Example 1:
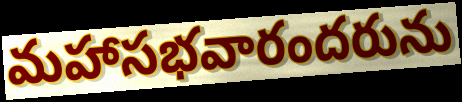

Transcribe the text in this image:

మహాసభవారందరును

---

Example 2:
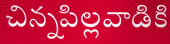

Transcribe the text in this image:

చిన్నపిల్లవాడికి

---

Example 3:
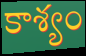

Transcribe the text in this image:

కాశ్యం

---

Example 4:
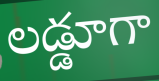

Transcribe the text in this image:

లడ్డూగా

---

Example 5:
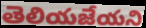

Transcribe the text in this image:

తెలియజేయని